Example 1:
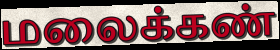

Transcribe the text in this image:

மலைக்கண்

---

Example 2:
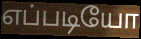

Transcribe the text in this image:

எப்படியோ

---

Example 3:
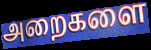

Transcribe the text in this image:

அறைகளை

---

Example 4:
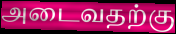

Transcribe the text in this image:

அடைவதற்கு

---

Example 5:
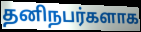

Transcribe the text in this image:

தனிநபர்களாக